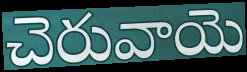
చెరువాయె